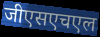
जीएसएचएल